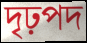
দৃঢ়পদ